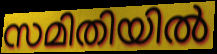
സമിതിയിൽ